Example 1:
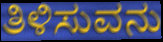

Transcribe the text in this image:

ತಿಳಿಸುವನು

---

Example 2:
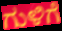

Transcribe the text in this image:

ಗುಳಿಗೆ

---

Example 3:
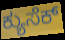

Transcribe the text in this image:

ಕ್ಯುಸೆಕ್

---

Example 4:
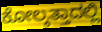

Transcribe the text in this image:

ಕೋಲ್ಕತ್ತಾದಲ್ಲಿ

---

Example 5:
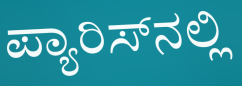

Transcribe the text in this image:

ಪ್ಯಾರಿಸ್‌ನಲ್ಲಿ